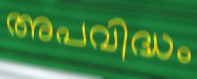
അപവിദ്ധം